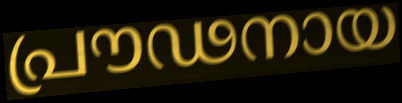
പ്രൗഢനായ